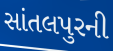
સાંતલપુરની